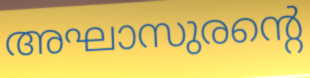
അഘാസുരന്റെ